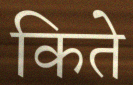
किते